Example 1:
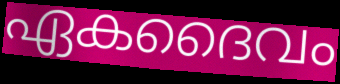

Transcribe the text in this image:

ഏകദൈവം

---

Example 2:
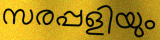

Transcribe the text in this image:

സരപ്പളിയും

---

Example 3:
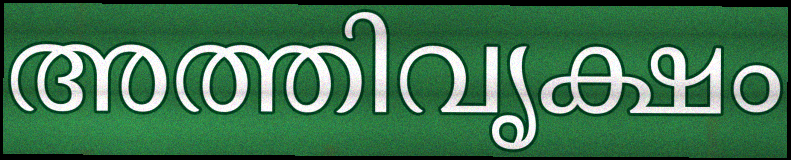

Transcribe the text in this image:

അത്തിവൃക്ഷം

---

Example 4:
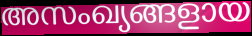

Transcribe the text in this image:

അസംഖ്യങ്ങളായ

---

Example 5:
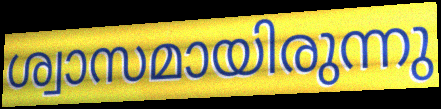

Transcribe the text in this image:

ശ്വാസമായിരുന്നു